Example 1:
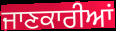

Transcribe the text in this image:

ਜਾਣਕਾਰੀਆਂ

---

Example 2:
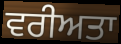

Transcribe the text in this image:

ਵਰੀਅਤਾ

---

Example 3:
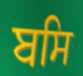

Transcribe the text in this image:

ਬਸਿ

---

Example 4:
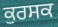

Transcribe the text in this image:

ਕੁਰਸਕ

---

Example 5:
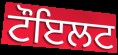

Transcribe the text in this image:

ਟੌਇਲਟ